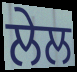
ਲੇਲ